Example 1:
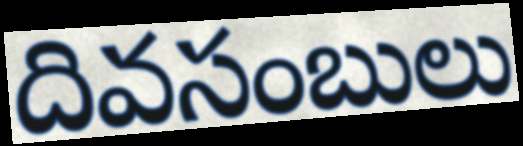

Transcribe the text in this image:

దివసంబులు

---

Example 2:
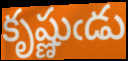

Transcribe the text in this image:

కృష్ణుఁడు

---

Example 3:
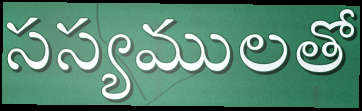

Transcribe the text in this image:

సస్యములతో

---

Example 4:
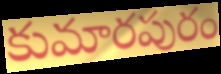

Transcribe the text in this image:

కుమారపురం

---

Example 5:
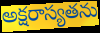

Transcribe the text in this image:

అక్షరాస్యతను